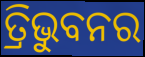
ତ୍ରିଭୁବନର